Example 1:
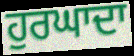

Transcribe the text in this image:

ਹੁਰਘਾਦਾ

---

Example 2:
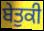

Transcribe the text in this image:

ਬੇਤੁਕੀ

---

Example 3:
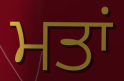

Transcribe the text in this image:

ਮਤਾਂ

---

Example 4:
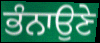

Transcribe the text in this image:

ਭੰਨਾਉਣੇ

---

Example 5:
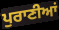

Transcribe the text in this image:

ਪੁਰਾਣੀਆਂ